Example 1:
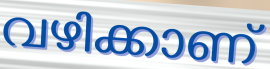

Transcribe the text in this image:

വഴിക്കാണ്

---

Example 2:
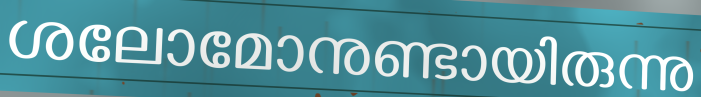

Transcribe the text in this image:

ശലോമോനുണ്ടായിരുന്നു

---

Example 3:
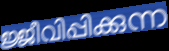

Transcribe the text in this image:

ജ്ജീവിപ്പിക്കുന്ന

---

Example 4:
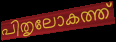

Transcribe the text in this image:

പിതൃലോകത്ത്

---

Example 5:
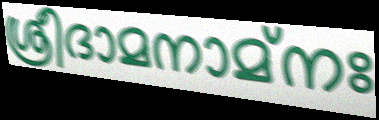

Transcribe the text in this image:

ശ്രീദാമനാമ്നഃ